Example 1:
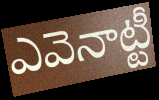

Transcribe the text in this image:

ఎవెనాట్టీ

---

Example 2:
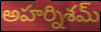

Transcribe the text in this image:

అహర్నిశమ్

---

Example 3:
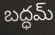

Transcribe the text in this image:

బద్ధమ్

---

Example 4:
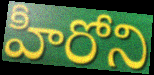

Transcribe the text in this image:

హీరోని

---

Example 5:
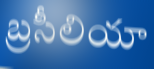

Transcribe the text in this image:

బ్రసీలియా